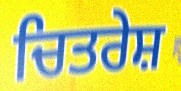
ਚਿਤਰੇਸ਼